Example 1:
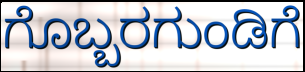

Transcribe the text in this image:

ಗೊಬ್ಬರಗುಂಡಿಗೆ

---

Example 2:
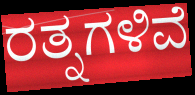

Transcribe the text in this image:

ರತ್ನಗಳಿವೆ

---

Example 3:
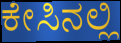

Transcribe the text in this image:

ಕೇಸಿನಲ್ಲಿ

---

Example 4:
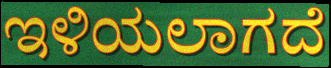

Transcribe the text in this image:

ಇಳಿಯಲಾಗದೆ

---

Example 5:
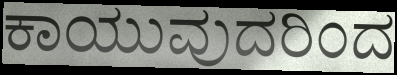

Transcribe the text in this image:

ಕಾಯುವುದರಿಂದ